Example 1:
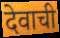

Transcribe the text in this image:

देवाची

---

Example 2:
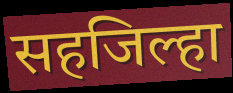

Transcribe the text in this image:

सहजिल्हा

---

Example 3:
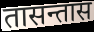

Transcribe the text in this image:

तासन्तास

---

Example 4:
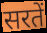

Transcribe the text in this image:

सरतें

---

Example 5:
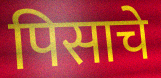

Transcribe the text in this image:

पिसाचे